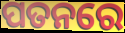
ପତନରେ